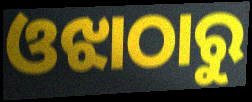
ଓଝାଠାରୁ